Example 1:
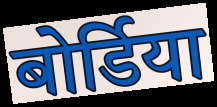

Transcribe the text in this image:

बोर्डिया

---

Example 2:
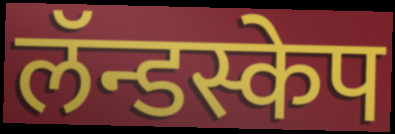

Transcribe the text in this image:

लॅन्डस्केप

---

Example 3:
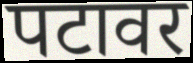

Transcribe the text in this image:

पटावर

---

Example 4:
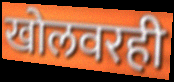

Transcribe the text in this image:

खोलवरही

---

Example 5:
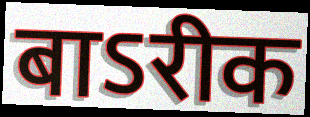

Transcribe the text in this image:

बाऽरीक